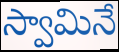
స్వామినే